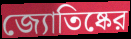
জ্যোতিষ্কের